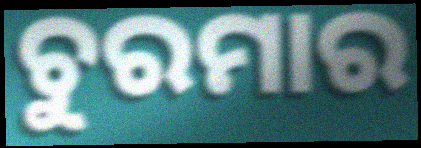
ଚୁରମାର